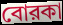
বোরকা